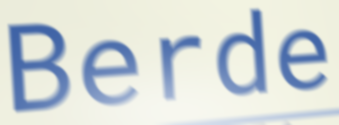
Berde